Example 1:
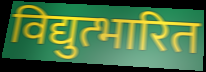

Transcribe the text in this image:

विद्युत्भारित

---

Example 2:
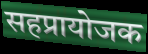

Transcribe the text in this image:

सहप्रायोजक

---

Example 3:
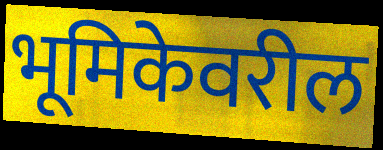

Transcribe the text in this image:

भूमिकेवरील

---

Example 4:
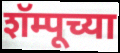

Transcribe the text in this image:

शॅम्पूच्या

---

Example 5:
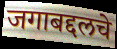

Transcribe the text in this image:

जगाबद्दलचे